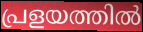
പ്രളയത്തിൽ